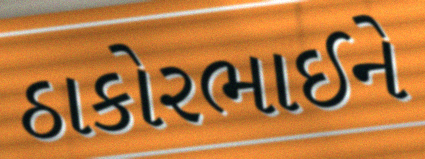
ઠાકોરભાઈને